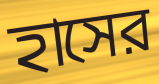
হাসের